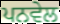
ਪਨਵੇਲ